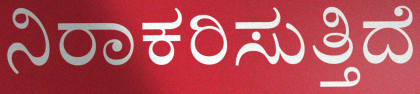
ನಿರಾಕರಿಸುತ್ತಿದೆ